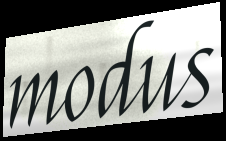
modus